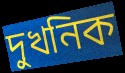
দুখনিক